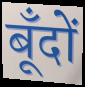
बूँदों